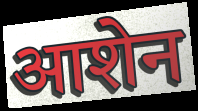
आशेन